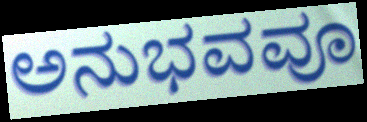
ಅನುಭವವೂ